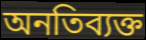
অনতিব্যক্ত